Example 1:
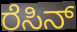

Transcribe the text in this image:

ರೆಸಿನ್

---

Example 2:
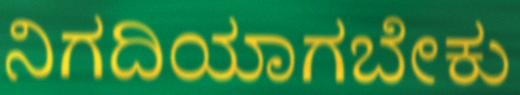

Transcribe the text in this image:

ನಿಗದಿಯಾಗಬೇಕು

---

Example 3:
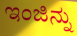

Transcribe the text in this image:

ಇಂಜಿನ್ನು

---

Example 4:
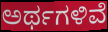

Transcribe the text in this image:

ಅರ್ಥಗಳಿವೆ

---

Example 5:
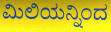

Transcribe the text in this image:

ಮಿಲಿಯನ್ನಿಂದ